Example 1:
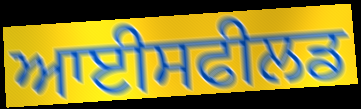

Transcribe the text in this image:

ਆਈਸਫੀਲਡ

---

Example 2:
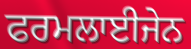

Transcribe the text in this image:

ਫਰਮਲਾਈਜੇਨ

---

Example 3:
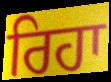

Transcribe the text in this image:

ਰਿਹਾ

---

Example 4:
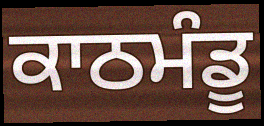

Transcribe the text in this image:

ਕਾਠਮੰਡੂ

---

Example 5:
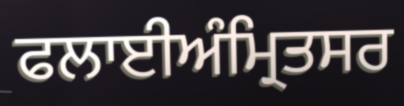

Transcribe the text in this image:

ਫਲਾਈਅੰਮ੍ਰਿਤਸਰ